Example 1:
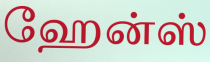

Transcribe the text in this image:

ஹேன்ஸ்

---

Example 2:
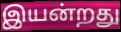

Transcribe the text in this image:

இயன்றது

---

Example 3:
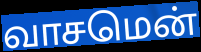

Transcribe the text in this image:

வாசமென்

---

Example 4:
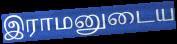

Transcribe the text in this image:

இராமனுடைய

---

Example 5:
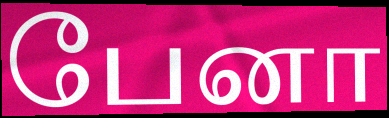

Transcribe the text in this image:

பேனா